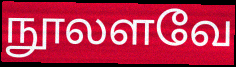
நூலளவே